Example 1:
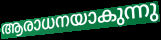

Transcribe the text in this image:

ആരാധനയാകുന്നു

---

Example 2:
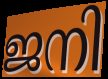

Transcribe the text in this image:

ജനി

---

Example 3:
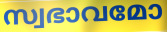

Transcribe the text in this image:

സ്വഭാവമോ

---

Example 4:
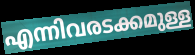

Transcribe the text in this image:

എന്നിവരടക്കമുള്ള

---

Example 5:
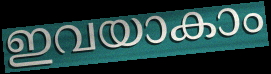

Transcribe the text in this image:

ഇവയാകാം